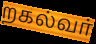
றகல்வர்